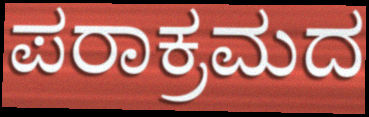
ಪರಾಕ್ರಮದ